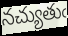
నచ్యుతుఁ